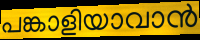
പങ്കാളിയാവാൻ